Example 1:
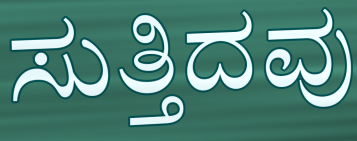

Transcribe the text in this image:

ಸುತ್ತಿದವು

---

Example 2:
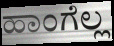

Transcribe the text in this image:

ಹಾಂಗೆಲ್ಲ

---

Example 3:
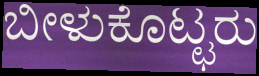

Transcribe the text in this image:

ಬೀಳುಕೊಟ್ಟರು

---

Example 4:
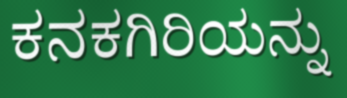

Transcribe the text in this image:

ಕನಕಗಿರಿಯನ್ನು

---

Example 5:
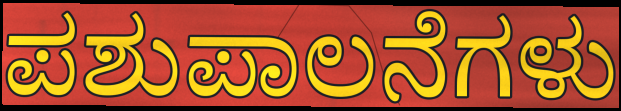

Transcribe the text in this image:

ಪಶುಪಾಲನೆಗಳು